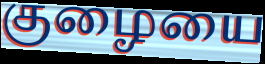
குழையை